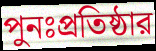
পুনঃপ্রতিষ্ঠার